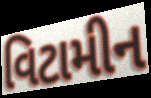
વિટામીન